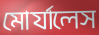
মোর্যালেস